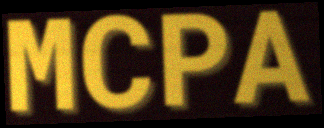
MCPA